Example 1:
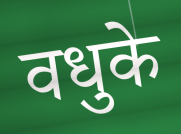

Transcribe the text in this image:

वधुके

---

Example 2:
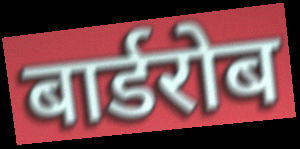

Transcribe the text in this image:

बार्डरोब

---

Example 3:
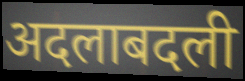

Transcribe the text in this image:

अदलाबदली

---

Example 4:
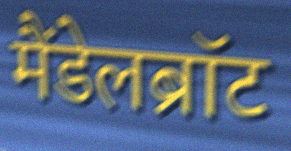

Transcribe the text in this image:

मैंडेलब्रॉट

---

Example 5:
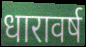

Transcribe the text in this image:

धारावर्ष